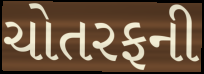
ચોતરફની